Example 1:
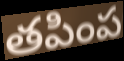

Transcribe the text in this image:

తపింప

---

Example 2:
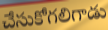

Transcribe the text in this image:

చేసుకోగలిగాడు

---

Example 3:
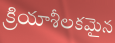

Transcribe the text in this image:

క్రియాశీలకమైన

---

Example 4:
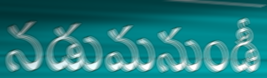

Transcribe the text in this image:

నడుమనుండీ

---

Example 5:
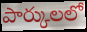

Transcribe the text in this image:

పార్కులలో